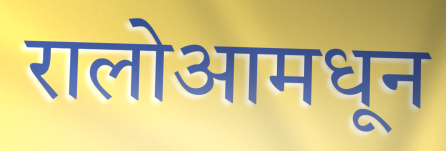
रालोआमधून